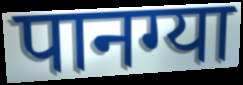
पानग्या